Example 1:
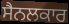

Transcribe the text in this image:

ਸੈਨਲਕਾਰ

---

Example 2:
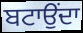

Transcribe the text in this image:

ਬਟਾਉਂਦਾ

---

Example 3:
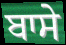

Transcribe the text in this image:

ਬਾਸੇ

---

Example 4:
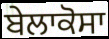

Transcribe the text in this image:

ਬੇਲਾਕੋਸਾ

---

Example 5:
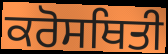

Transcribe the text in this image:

ਕਰੋਸਥਿਤੀ